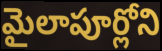
మైలాపూర్లోని